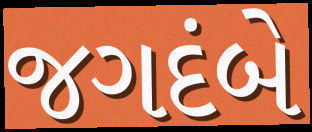
જગદંબે